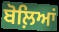
ਬੋਲ਼ਿਆਂ